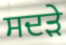
ਸਦੜੇ